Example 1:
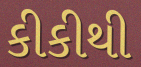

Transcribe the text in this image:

કીકીથી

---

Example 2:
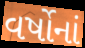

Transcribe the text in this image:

વર્ષોનાં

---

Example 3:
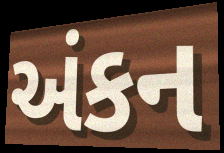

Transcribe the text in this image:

અંકન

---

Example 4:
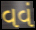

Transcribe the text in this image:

વવં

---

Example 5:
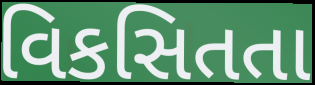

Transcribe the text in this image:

વિકસિતતા